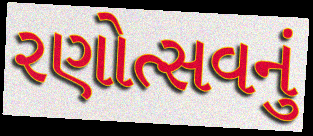
રણોત્સવનું